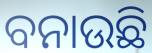
ବନାଉଛି